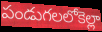
పండుగలలోకెల్లా